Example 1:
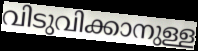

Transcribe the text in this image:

വിടുവിക്കാനുള്ള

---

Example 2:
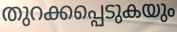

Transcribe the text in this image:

തുറക്കപ്പെടുകയും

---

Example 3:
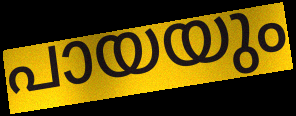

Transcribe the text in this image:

പായയും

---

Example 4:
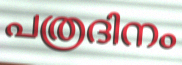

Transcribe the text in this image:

പത്രദിനം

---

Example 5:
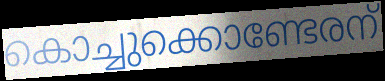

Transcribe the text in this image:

കൊച്ചുക്കൊണ്ടേരന്